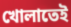
খোলাতেই